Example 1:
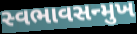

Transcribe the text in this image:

સ્વભાવસન્મુખ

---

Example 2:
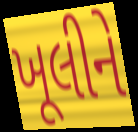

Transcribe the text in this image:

ખૂલીને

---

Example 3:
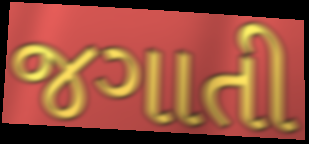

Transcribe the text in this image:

જગાતી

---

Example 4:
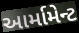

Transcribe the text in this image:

આર્મામેન્ટ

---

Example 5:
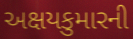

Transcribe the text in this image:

અક્ષયકુમારની